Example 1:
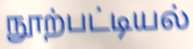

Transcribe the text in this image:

நூற்பட்டியல்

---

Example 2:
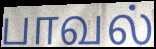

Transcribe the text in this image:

பாவல்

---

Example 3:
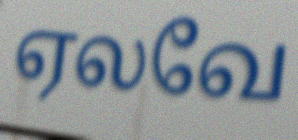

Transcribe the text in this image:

ஏலவே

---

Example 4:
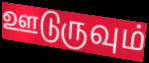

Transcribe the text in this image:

ஊடுருவும்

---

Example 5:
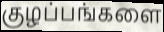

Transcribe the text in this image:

குழப்பங்களை